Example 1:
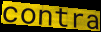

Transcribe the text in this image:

contra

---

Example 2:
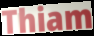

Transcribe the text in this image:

Thiam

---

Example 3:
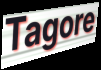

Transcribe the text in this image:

Tagore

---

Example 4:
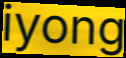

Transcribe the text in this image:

iyong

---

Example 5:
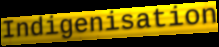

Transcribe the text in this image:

Indigenisation